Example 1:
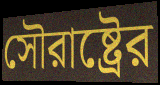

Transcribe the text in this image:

সৌরাষ্ট্রের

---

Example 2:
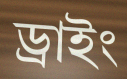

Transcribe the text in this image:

ড্রাইং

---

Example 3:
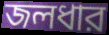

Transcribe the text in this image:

জলধার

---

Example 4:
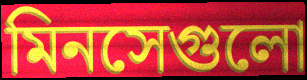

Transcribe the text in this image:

মিনসেগুলো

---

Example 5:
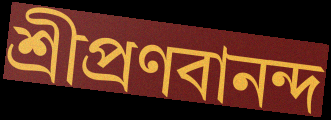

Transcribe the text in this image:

শ্রীপ্রণবানন্দ